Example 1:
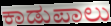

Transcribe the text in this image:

ಕಾಡುಪಾಲು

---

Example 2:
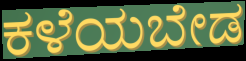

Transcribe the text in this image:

ಕಳೆಯಬೇಡ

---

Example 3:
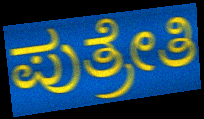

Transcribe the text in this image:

ಪುತ್ರೇತಿ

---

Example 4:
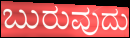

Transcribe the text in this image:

ಬುರುವುದು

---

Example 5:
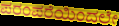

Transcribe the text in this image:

ಪರಂಪರೆಯಿಂದಲೇ